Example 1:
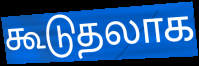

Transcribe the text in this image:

கூடுதலாக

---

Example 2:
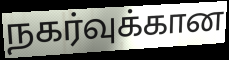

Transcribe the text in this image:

நகர்வுக்கான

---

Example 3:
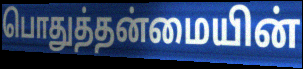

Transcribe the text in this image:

பொதுத்தன்மையின்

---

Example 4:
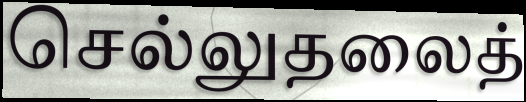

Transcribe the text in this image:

செல்லுதலைத்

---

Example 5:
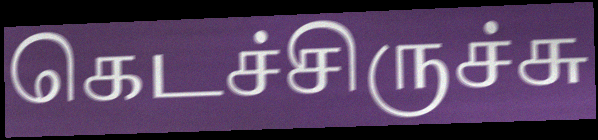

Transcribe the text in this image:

கெடச்சிருச்சு